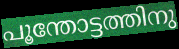
പൂന്തോട്ടത്തിനു